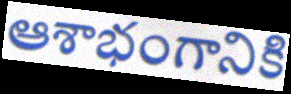
ఆశాభంగానికి